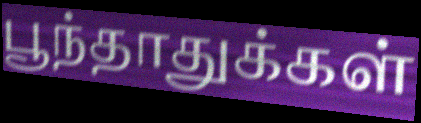
பூந்தாதுக்கள்